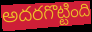
అదరగొట్టింది